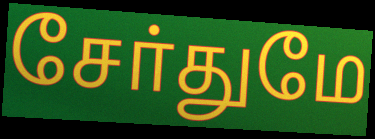
சேர்துமே